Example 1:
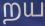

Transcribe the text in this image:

றய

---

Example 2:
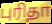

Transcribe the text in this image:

புரிதா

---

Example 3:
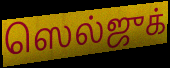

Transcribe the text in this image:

ஸெல்ஜுக்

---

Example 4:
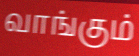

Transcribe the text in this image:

வாங்கும்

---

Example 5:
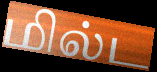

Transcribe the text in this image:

மில்ட